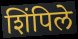
शिंपिले